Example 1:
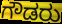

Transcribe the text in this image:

ಗೌಡರು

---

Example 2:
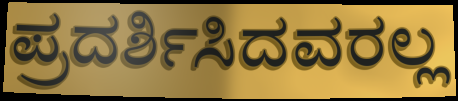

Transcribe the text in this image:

ಪ್ರದರ್ಶಿಸಿದವರಲ್ಲ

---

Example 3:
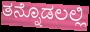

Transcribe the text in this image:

ತನ್ನೊಡಲಲ್ಲಿ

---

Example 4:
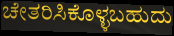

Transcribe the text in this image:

ಚೇತರಿಸಿಕೊಳ್ಳಬಹುದು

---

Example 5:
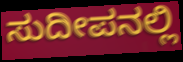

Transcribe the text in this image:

ಸುದೀಪನಲ್ಲಿ